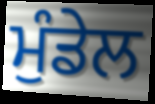
ਮੁੰਡੇਲ